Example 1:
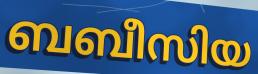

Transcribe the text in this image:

ബബീസിയ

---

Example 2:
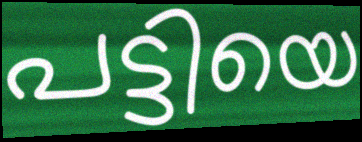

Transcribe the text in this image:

പട്ടിയെ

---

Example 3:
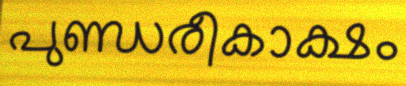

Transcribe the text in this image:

പുണ്ഡരീകാക്ഷം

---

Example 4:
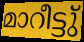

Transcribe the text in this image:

മാറീട്ടു്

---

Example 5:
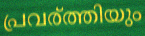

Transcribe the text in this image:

പ്രവര്ത്തിയും